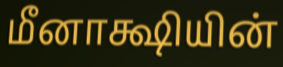
மீனாக்ஷியின்